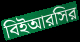
বিইআরসির